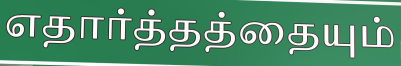
எதார்த்தத்தையும்